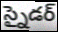
స్నైడర్